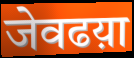
जेवढय़ा